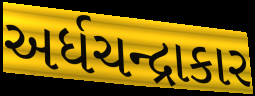
અર્ધચન્દ્રાકાર